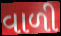
વાળી